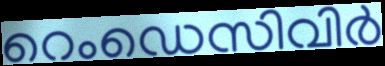
റെംഡെസിവിർ